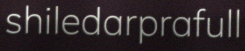
shiledarprafull